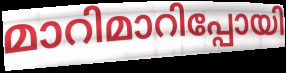
മാറിമാറിപ്പോയി